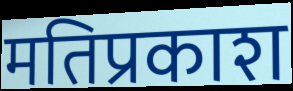
मतिप्रकाश